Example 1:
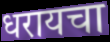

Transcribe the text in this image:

धरायचा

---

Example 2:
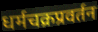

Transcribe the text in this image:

धर्मचक्रप्रवर्तन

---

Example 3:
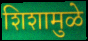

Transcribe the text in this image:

शिशामुळे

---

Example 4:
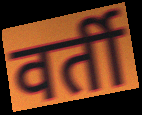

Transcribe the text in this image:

वर्ती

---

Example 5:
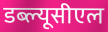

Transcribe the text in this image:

डब्ल्यूसीएल